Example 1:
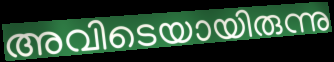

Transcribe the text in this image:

അവിടെയായിരുന്നു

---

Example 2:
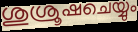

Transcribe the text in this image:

ശുശ്രൂഷചെയ്യും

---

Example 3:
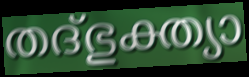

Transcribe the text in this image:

തദ്ഭുക്ത്യാ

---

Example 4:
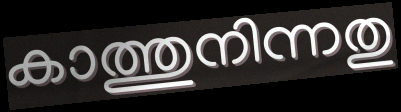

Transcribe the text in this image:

കാത്തുനിന്നതു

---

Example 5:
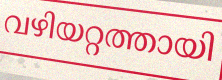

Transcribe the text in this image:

വഴിയറ്റത്തായി